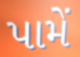
પામેં